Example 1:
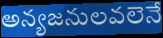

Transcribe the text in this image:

అన్యజనులవలెనే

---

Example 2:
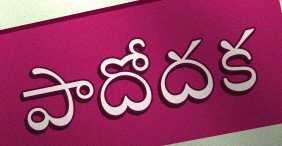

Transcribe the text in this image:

పాదోదక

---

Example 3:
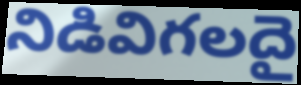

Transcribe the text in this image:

నిడివిగలదై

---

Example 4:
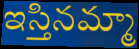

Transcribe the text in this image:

ఇస్తినమ్మా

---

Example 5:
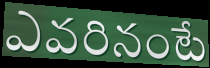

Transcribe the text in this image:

ఎవరినంటే